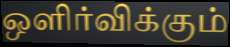
ஒளிர்விக்கும்